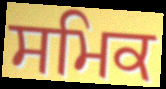
ਸਮਿਕ